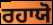
ਰਹਾਯੋ